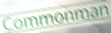
Commonman